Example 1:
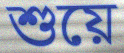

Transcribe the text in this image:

শুয়ে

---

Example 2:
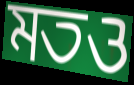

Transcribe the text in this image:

মতও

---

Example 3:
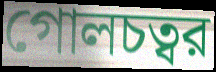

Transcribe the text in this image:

গোলচত্বর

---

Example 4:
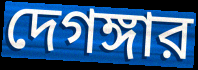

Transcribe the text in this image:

দেগঙ্গার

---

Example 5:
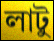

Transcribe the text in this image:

লাটু